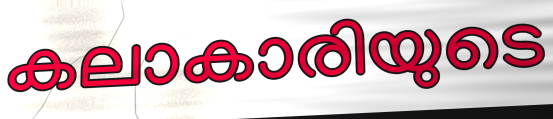
കലാകാരിയുടെ